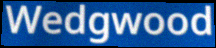
Wedgwood